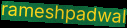
rameshpadwal